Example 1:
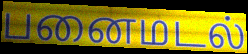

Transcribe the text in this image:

பனைமடல்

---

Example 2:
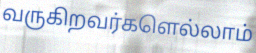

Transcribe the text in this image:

வருகிறவர்களெல்லாம்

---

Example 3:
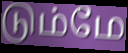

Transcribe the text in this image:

டும்மே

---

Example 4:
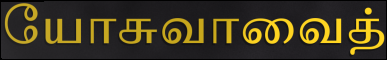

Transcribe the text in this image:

யோசுவாவைத்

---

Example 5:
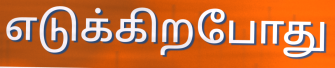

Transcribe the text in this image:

எடுக்கிறபோது